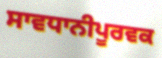
ਸਾਵਧਾਨੀਪੂਰਵਕ